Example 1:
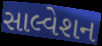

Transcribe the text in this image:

સાલ્વેશન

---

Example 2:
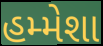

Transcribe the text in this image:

હમ્મેશા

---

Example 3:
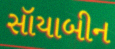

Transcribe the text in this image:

સૉયાબીન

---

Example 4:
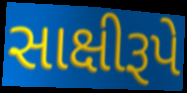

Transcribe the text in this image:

સાક્ષીરૂપે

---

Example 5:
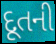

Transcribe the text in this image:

દૂતની